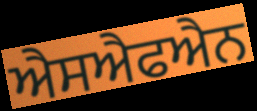
ਐਸਐਫਐਨ